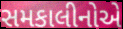
સમકાલીનોએ